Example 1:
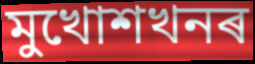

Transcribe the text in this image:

মুখোশখনৰ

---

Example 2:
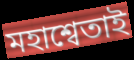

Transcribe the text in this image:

মহাশ্বেতাই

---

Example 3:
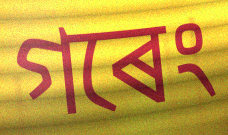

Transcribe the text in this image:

গৰেং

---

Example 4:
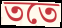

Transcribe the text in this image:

ততে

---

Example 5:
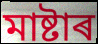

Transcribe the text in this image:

মাষ্টাৰ